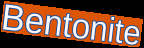
Bentonite